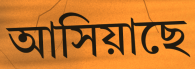
আসিয়াছে